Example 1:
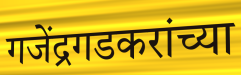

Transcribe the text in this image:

गजेंद्रगडकरांच्या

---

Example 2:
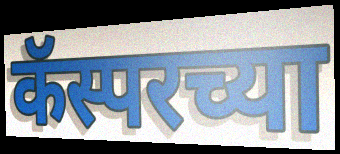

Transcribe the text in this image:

कॅस्परच्या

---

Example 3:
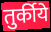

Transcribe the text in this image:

तुर्कीये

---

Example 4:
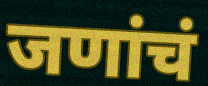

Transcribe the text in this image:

जणांचं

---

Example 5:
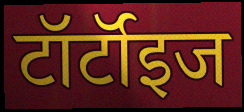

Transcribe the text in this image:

टॉर्टॉइज